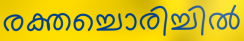
രക്തച്ചൊരിച്ചിൽ